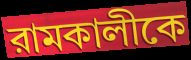
রামকালীকে